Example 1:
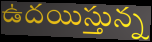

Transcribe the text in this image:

ఉదయిస్తున్న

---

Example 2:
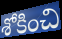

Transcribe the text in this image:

శోకించి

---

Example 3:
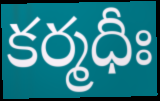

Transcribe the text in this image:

కర్మధీః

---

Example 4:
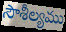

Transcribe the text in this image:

సౌశీల్యము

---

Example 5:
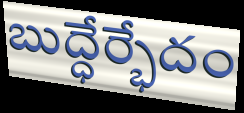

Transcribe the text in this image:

బుద్ధేర్భేదం